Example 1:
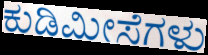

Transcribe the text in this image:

ಕುಡಿಮೀಸೆಗಳು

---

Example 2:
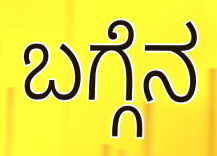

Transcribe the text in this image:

ಬಗ್ಗೆನ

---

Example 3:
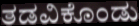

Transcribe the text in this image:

ತಡವಿಕೊಂಡು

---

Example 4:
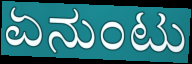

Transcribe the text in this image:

ಏನುಂಟು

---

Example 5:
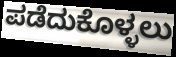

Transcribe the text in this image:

ಪಡೆದುಕೊಳ್ಳಲು